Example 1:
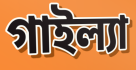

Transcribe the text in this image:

গাইল্যা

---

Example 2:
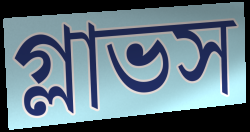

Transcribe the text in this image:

গ্লাভস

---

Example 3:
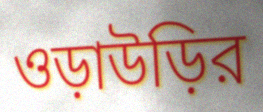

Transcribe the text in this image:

ওড়াউড়ির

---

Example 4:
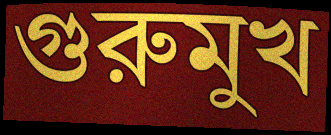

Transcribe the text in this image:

গুরুমুখ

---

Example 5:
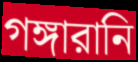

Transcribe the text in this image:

গঙ্গারানি